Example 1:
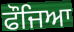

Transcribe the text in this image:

ਫੌਜਿਆ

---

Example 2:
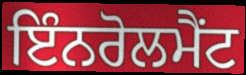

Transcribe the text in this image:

ਇੰਨਰੋਲਮੈਂਟ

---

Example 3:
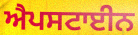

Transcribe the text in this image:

ਐਪਸਟਾਈਨ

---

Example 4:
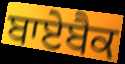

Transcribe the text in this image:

ਬਾਏਬੈਕ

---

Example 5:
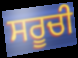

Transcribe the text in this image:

ਸਰੂਚੀ